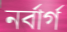
নর্বার্গ